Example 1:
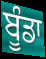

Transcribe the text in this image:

ਬੂੰਡਾ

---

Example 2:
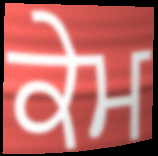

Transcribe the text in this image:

ਕੇਮ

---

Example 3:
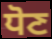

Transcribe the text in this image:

ਧੋਣ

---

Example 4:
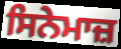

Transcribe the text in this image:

ਸਿਨੇਮਾਜ਼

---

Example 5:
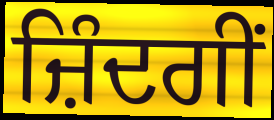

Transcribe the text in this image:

ਜ਼ਿੰਦਗੀਂ